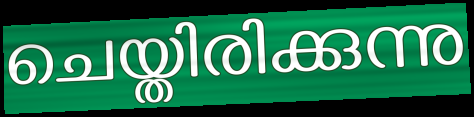
ചെയ്തിരിക്കുന്നു